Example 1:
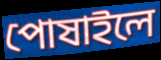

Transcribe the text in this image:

পোষাইলে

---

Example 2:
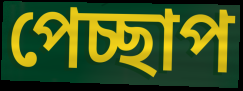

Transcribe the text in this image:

পেচ্ছাপ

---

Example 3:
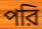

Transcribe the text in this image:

পরি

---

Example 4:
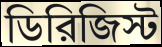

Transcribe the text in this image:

ডিরিজিস্ট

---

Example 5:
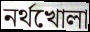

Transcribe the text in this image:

নর্থখোলা